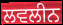
ਲਵਲੀਨ